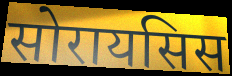
सोरायसिस